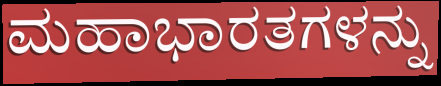
ಮಹಾಭಾರತಗಳನ್ನು